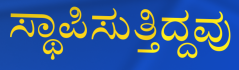
ಸ್ಥಾಪಿಸುತ್ತಿದ್ದವು